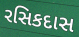
રસિકદાસ